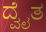
ದ್ವೈತ